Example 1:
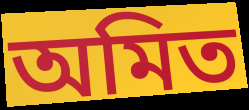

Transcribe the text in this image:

অমিত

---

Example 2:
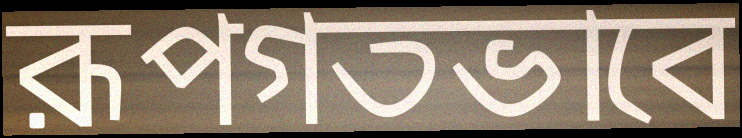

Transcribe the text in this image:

রূপগতভাবে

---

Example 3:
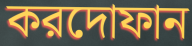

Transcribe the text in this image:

করদোফান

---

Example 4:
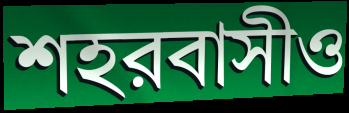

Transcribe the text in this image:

শহরবাসীও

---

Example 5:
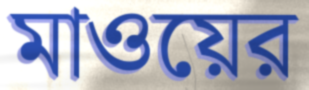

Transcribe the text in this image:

মাওয়ের